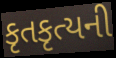
કૃતકૃત્યની